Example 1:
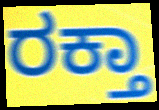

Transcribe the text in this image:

ರಕ್ತಾ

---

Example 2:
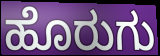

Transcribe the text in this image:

ಹೊರುಗು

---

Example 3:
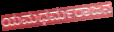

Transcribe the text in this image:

ಯಮಧರ್ಮರಾಜನ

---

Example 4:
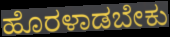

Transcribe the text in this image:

ಹೊರಳಾಡಬೇಕು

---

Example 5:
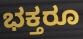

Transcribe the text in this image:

ಭಕ್ತರೂ